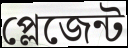
প্লেজেন্ট